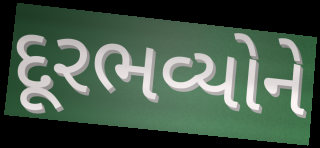
દૂરભવ્યોને